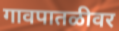
गावपातळीवर